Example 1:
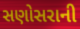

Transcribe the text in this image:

સણોસરાની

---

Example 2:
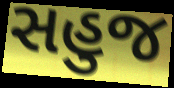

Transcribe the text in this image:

સહુજ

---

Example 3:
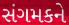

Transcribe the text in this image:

સંગમકને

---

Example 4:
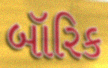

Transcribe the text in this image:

બૉરિક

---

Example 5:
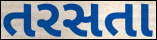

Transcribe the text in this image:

તરસતા